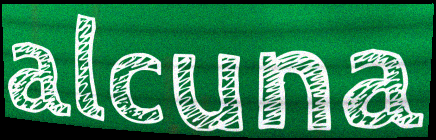
alcuna